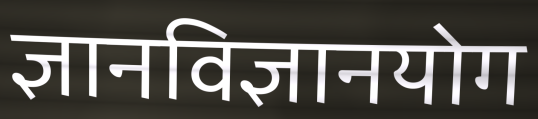
ज्ञानविज्ञानयोग